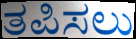
ತಪಿಸಲು